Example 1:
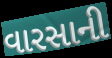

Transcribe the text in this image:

વારસાની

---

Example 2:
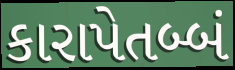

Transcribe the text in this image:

કારાપેતબ્બં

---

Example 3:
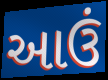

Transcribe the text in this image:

આઉં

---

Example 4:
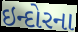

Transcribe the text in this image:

ઇન્દોરના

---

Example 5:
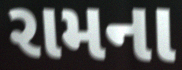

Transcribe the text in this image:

રામના